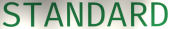
STANDARD